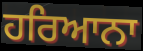
ਹਰਿਆਨਾ